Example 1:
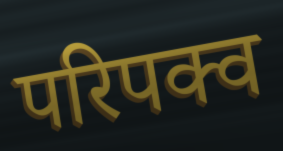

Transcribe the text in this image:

परिपक्व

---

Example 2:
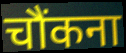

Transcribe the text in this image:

चौंकना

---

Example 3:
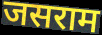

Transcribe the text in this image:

जसराम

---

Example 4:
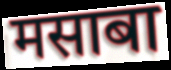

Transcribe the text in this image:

मसाबा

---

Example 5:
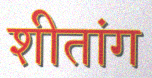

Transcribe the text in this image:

शीतांग